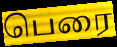
பெரை